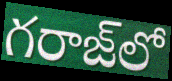
గరాజ్‌లో